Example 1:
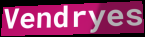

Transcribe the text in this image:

Vendryes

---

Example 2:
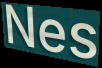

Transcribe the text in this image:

Nes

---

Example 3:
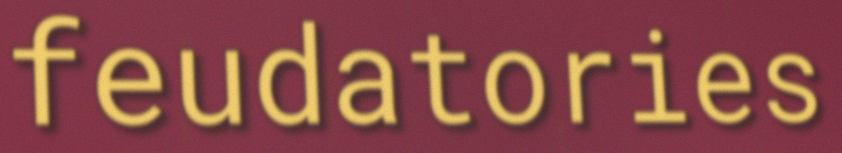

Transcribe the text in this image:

feudatories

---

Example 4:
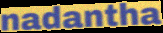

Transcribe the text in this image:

nadantha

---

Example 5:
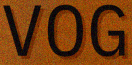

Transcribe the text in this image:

VOG